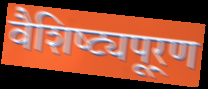
वैशिष्ट्यपूर्ण